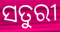
ସତୁରୀ